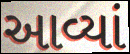
આવ્યાં